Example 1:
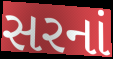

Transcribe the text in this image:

સરનાં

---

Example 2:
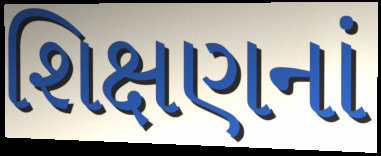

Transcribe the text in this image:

શિક્ષણનાં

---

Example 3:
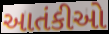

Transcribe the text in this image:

આતંકીઓ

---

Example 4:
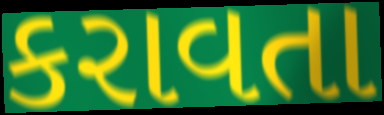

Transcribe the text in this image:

કરાવતા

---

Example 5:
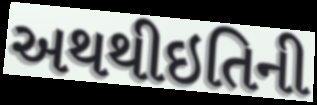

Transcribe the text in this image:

અથથીઇતિની